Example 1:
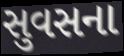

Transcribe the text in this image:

સુવસના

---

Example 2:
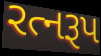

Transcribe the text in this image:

રત્નરૂપ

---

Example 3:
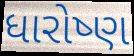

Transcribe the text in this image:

ધારોષ્ણ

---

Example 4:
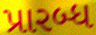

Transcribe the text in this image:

પ્રારબ્ધ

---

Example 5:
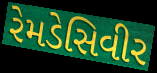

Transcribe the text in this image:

રેમડેસિવીર